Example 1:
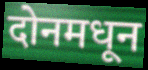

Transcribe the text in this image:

दोनमधून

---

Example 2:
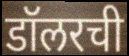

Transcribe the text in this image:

डॉलरची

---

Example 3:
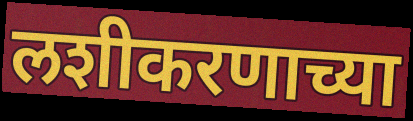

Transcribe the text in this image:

लशीकरणाच्या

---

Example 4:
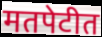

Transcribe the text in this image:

मतपेटीत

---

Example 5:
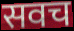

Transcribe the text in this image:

सवच